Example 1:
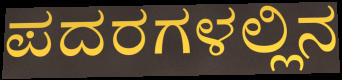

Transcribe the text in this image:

ಪದರಗಳಲ್ಲಿನ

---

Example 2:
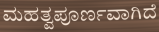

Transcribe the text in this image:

ಮಹತ್ವಪೂರ್ಣವಾಗಿದೆ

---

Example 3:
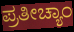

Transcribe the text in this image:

ಪ್ರತೀಚ್ಯಾಂ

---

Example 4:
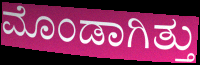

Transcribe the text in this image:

ಮೊಂಡಾಗಿತ್ತು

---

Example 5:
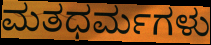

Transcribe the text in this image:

ಮತಧರ್ಮಗಳು